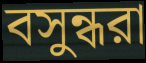
বসুন্ধরা